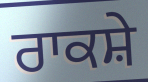
ਰਾਕਸ਼ੇ